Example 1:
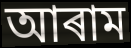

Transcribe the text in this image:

আৰাম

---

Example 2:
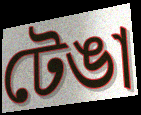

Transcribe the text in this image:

টেঙা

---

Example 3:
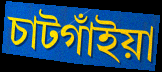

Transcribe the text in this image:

চাটগাঁইয়া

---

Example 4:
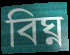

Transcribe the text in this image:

বিঘ্ন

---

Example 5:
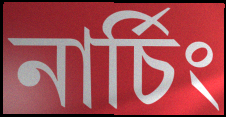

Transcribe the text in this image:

নাৰ্চিং